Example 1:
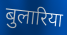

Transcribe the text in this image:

बुलारिया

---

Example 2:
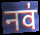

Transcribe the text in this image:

नव॑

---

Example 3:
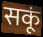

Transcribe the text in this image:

सकूं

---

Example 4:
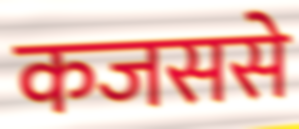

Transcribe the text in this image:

कजससे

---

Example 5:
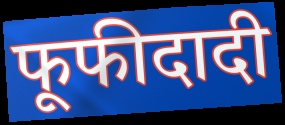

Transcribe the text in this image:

फूफीदादी